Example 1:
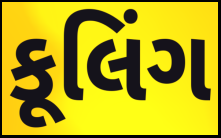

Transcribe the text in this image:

કૂલિંગ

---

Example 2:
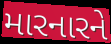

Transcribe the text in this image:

મારનારને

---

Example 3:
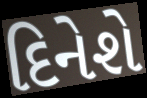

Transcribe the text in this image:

દિનેશે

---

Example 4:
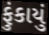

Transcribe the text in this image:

ફુંકાયું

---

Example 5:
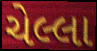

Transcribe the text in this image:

ચેલ્લા